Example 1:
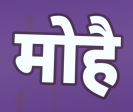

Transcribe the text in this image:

मोहै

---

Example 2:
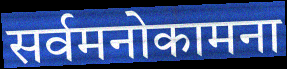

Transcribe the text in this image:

सर्वमनोकामना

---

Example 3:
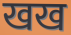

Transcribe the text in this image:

खख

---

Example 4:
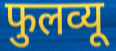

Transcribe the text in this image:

फुलव्यू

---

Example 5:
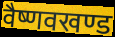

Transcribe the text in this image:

वैष्णवखण्ड